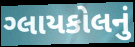
ગ્લાયકોલનું